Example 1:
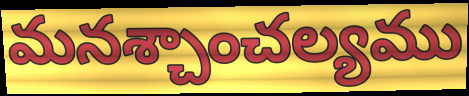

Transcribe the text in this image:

మనశ్చాంచల్యము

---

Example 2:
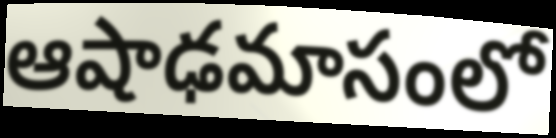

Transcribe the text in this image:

ఆషాఢమాసంలో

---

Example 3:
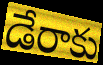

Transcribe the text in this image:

డేరాకు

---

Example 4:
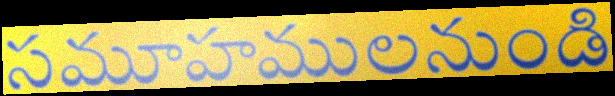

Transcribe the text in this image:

సమూహములనుండి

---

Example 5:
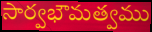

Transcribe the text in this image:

సార్వభౌమత్వము